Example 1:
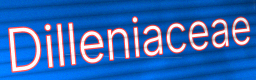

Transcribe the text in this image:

Dilleniaceae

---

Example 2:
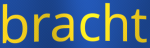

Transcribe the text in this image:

bracht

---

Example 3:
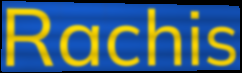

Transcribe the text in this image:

Rachis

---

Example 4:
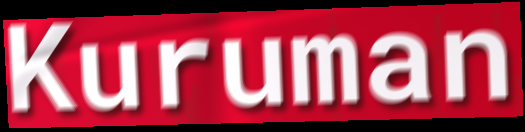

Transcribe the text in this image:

Kuruman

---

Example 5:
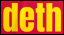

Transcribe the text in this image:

deth